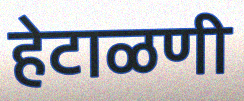
हेटाळणी